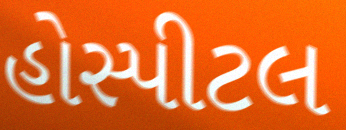
હોસ્પીટલ